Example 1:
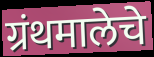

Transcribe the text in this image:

ग्रंथमालेचे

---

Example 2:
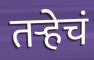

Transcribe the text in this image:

तर्‍हेचं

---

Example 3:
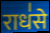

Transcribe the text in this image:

राध॑से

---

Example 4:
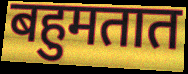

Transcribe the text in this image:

बहुमतात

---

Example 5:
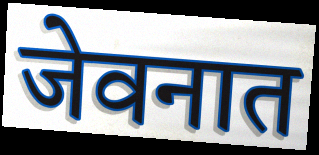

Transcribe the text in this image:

जेवनात